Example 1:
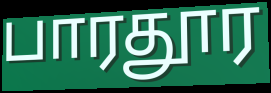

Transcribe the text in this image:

பாரதூர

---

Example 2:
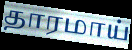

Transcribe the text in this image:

தாரமாய்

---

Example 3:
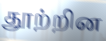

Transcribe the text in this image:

தூற்றின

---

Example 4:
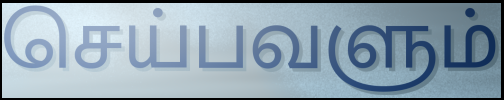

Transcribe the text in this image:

செய்பவளும்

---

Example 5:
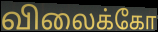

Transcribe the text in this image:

விலைக்கோ